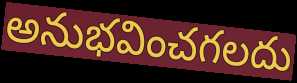
అనుభవించగలదు